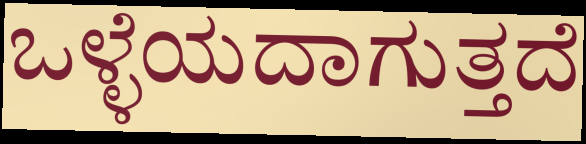
ಒಳ್ಳೆಯದಾಗುತ್ತದೆ